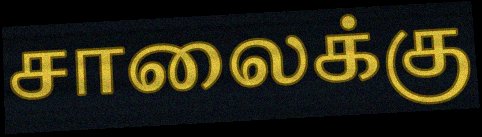
சாலைக்கு